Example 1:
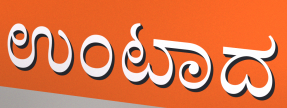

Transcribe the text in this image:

ಉಂಟಾದ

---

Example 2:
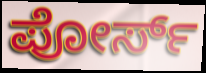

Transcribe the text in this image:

ಪೋರ್ಸ್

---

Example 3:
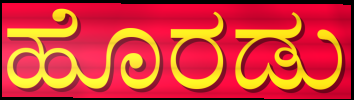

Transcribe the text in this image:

ಹೊರಡು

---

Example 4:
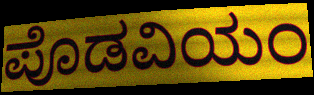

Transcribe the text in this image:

ಪೊಡವಿಯಂ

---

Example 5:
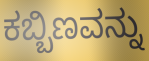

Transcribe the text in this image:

ಕಬ್ಬಿಣವನ್ನು